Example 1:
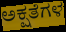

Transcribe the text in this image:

ಅಕ್ಷತೆಗಳ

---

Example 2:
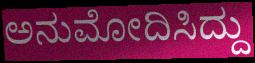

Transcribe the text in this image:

ಅನುಮೋದಿಸಿದ್ದು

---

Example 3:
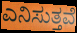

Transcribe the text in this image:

ಎನಿಸುತ್ತವೆ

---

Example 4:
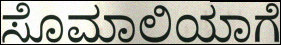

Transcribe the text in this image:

ಸೊಮಾಲಿಯಾಗೆ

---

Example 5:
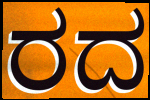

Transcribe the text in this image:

ರದ